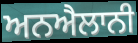
ਅਨਐਲਾਨੀ